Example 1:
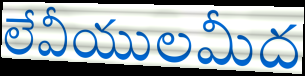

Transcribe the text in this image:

లేవీయులమీద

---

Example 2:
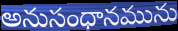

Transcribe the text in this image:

అనుసంధానమును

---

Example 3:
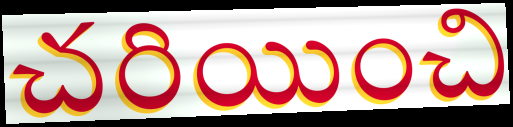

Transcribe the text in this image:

చరియించి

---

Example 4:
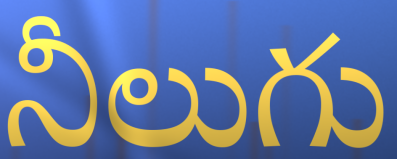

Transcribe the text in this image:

నీలుగు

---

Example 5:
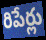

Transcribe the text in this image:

రిపేర్లు